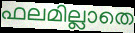
ഫലമില്ലാതെ